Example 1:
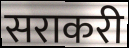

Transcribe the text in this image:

सराकरी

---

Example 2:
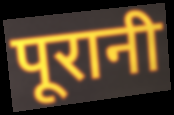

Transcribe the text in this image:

पूरानी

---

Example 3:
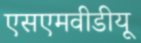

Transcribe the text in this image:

एसएमवीडीयू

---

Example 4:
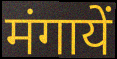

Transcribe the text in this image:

मंगायें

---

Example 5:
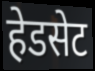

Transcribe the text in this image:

हेडसेट